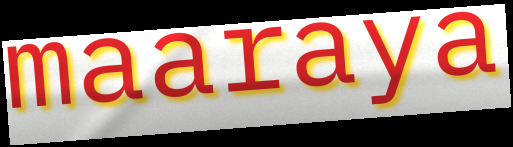
maaraya